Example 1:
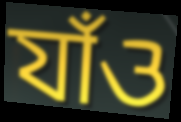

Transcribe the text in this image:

যাঁও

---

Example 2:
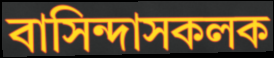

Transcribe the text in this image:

বাসিন্দাসকলক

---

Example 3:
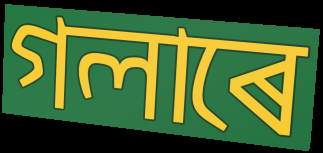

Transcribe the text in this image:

গলাৰে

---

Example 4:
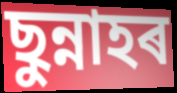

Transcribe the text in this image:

ছুন্নাহৰ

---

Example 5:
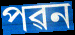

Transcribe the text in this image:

পৱন